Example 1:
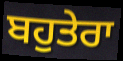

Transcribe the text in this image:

ਬਹੁਤੇਰਾ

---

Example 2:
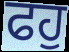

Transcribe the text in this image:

ਫਹੁ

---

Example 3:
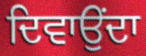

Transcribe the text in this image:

ਦਿਵਾਉਂਦਾ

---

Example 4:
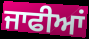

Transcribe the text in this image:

ਜਾਫੀਆਂ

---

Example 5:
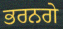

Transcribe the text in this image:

ਭਰਨਗੇ